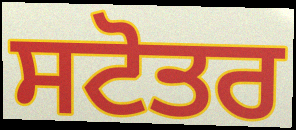
ਸਟੋਤਰ